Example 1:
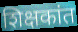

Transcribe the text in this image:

शिक्षकांत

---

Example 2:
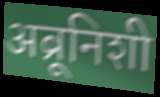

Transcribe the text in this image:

अब्रूनिशी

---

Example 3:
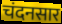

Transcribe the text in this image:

चंदनसार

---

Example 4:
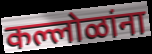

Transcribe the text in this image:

कल्लोळांना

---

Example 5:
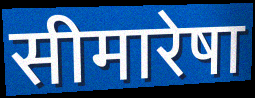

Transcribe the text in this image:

सीमारेषा